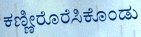
ಕಣ್ಣೀರೊರೆಸಿಕೊಂಡು